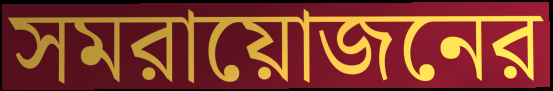
সমরায়োজনের